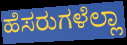
ಹೆಸರುಗಳೆಲ್ಲಾ